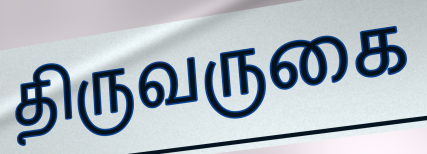
திருவருகை